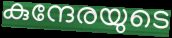
കുന്ദേരയുടെ